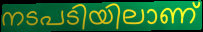
നടപടിയിലാണ്